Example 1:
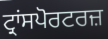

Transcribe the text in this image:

ਟ੍ਰਾਂਸਪੋਰਟਰਜ਼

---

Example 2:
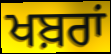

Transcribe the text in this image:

ਖਬ਼ਰਾਂ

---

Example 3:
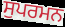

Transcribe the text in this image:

ਸੁਪਰਮਨ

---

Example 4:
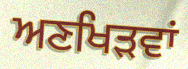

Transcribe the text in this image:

ਅਣਖਿੜਵਾਂ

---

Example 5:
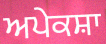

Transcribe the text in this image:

ਅਪੇਕਸ਼ਾ